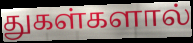
துகள்களால்